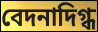
বেদনাদিগ্ধ